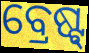
ବ୍ରେଷ୍ଟ୍